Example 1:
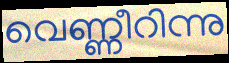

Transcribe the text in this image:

വെണ്ണീറിന്നു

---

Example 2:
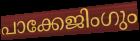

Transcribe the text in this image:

പാക്കേജിംഗും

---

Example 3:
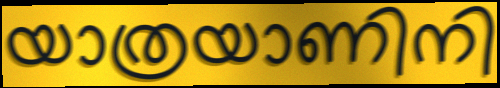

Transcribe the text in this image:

യാത്രയാണിനി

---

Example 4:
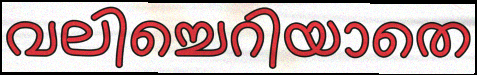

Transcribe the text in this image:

വലിച്ചെറിയാതെ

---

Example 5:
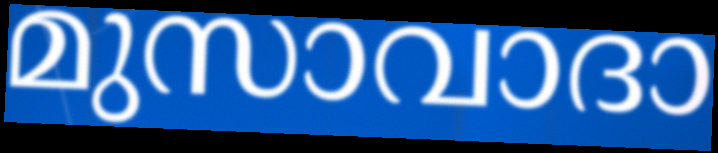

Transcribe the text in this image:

മുസാവാദാ